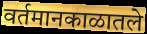
वर्तमानकाळातले